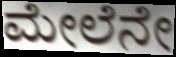
ಮೇಲೆನೇ